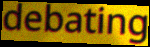
debating